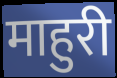
माहुरी